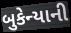
બુકેન્યાની